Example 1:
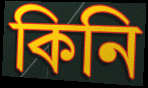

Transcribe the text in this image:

কিনি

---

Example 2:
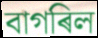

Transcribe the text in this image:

বাগৰিল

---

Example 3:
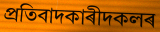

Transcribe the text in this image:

প্ৰতিবাদকাৰীদকলৰ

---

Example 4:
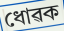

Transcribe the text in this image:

ধোৱক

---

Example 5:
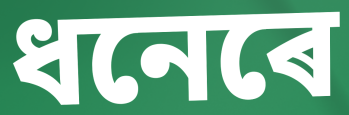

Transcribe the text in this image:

ধনেৰে